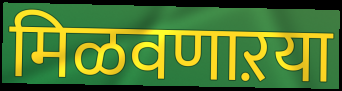
मिळवणाऱया